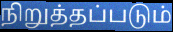
நிறுத்தப்படும்